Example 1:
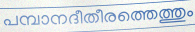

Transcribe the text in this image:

പമ്പാനദീതീരത്തെത്തും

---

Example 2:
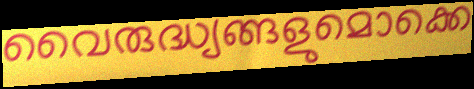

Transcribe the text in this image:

വൈരുദ്ധ്യങ്ങളുമൊക്കെ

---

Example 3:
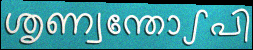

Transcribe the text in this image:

ശൃണ്വന്തോഽപി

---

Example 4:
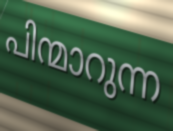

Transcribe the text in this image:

പിന്മാറുന്ന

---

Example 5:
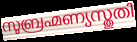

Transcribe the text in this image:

സുബ്രഹ്മണ്യസ്തുതി